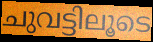
ചുവട്ടിലൂടെ